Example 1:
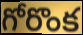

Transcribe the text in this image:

గోరొంక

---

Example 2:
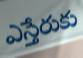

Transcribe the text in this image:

ఎస్తేరుకు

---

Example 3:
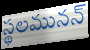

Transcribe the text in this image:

స్థలమునన్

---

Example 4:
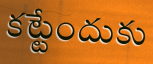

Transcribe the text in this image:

కట్టేందుకు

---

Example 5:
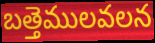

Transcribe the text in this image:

బత్తెములవలన